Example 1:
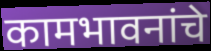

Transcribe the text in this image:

कामभावनांचे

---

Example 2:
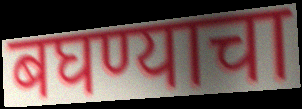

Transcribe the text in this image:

बघण्याचा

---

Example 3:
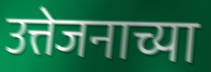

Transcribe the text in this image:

उत्तेजनाच्या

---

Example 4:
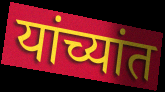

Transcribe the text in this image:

यांच्यांत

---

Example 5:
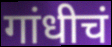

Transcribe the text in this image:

गांधीचं